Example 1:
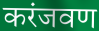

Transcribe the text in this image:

करंजवण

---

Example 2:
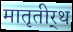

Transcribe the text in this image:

मातृतीर्थ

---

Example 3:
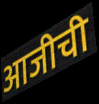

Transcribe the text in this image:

आजीची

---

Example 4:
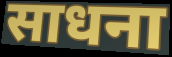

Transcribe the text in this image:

साधना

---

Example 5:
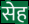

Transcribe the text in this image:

सेह